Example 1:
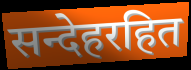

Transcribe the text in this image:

सन्देहरहित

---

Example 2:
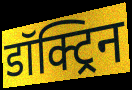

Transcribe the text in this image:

डॉक्ट्रिन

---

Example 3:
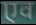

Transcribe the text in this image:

एव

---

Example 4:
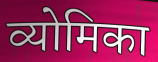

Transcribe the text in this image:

व्योमिका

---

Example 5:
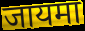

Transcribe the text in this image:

जायमा